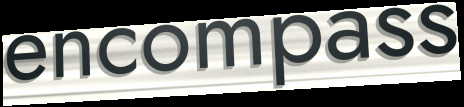
encompass